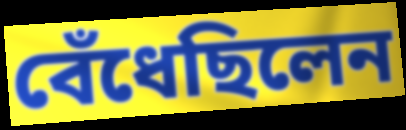
বেঁধেছিলেন